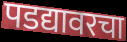
पडद्यावरचा